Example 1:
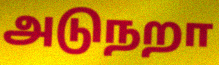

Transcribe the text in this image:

அடுநறா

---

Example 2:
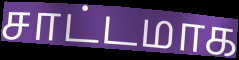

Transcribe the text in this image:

சாட்டமாக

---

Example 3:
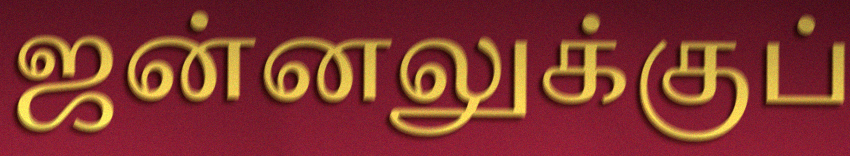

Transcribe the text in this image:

ஜன்னலுக்குப்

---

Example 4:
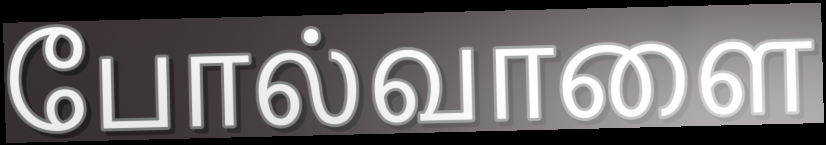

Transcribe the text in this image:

போல்வாளை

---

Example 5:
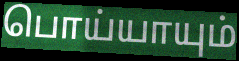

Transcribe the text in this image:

பொய்யாயும்